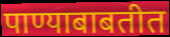
पाण्याबाबतीत